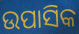
ଉପାସିକ